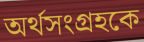
অর্থসংগ্রহকে